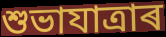
শুভাযাত্ৰাৰ